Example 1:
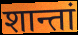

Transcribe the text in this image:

शान्तां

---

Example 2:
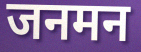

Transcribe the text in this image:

जनमन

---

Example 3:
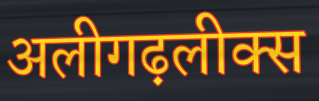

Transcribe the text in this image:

अलीगढ़लीक्स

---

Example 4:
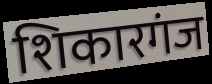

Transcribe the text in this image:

शिकारगंज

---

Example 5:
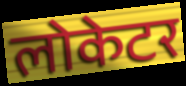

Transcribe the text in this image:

लोकेटर